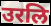
उरलि